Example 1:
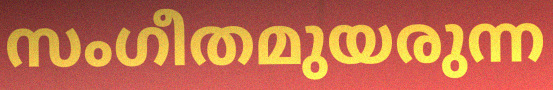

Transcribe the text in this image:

സംഗീതമുയരുന്ന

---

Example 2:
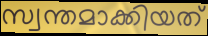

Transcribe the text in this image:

സ്വന്തമാക്കിയത്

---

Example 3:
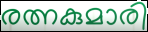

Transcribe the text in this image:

രത്നകുമാരി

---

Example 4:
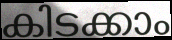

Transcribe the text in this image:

കിടക്കാം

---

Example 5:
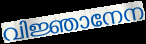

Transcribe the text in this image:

വിജ്ഞാനേന